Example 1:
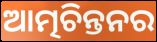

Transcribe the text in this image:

ଆତ୍ମଚିନ୍ତନର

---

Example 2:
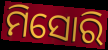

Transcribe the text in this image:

ମିସୋରି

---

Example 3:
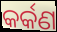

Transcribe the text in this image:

କର୍କଣ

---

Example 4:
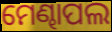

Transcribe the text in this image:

ମେଣ୍ଢାପଲ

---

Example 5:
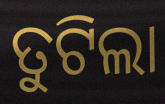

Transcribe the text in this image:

ତୁଟିଲା